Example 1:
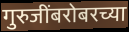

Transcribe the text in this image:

गुरुजींबरोबरच्या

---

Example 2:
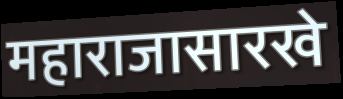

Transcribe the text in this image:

महाराजासारखे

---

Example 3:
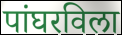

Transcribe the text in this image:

पांघरविला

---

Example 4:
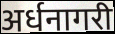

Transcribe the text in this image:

अर्धनागरी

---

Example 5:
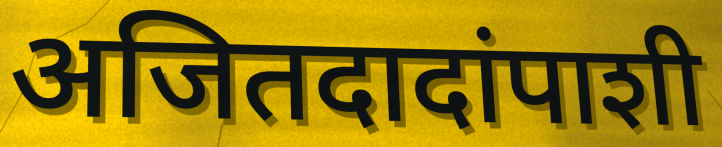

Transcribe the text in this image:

अजितदादांपाशी